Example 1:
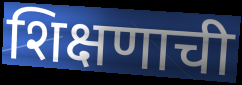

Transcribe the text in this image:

शिक्षणाची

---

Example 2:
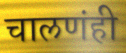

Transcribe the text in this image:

चालणंही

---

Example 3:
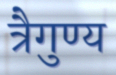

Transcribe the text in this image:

त्रैगुण्य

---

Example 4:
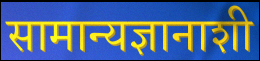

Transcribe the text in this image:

सामान्यज्ञानाशी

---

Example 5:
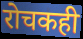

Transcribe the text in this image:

रोचकही